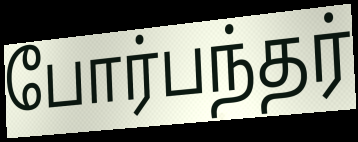
போர்பந்தர்